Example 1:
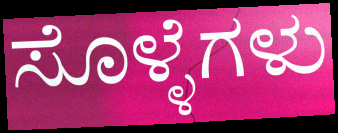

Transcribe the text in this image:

ಸೊಳ್ಳೆಗಳು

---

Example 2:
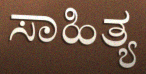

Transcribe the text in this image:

ಸಾಹಿತ್ಯ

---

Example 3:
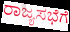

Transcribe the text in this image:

ರಾಜ್ಯಸಭೆಗೆ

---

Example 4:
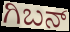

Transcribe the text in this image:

ಗಿಬನ್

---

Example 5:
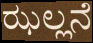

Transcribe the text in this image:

ಝಲ್ಲನೆ